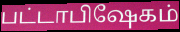
பட்டாபிஷேகம்